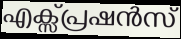
എക്സ്പ്രഷൻസ്